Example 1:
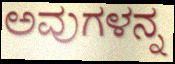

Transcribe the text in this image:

ಅವುಗಳನ್ನ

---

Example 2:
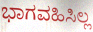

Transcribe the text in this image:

ಭಾಗವಹಿಸಿಲ್ಲ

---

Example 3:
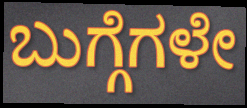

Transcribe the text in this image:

ಬುಗ್ಗೆಗಳೇ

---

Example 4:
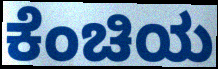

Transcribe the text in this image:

ಕೆಂಚಿಯ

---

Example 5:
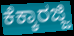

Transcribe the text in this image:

ಕೆಕ್ಕಾರಜ್ಜಿ